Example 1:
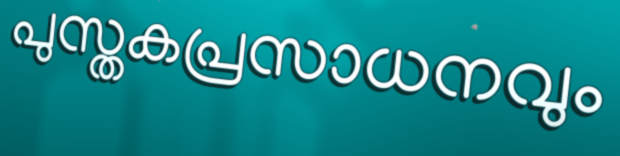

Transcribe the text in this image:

പുസ്തകപ്രസാധനവും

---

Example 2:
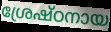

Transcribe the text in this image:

ശ്രേഷ്ഠനായ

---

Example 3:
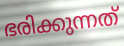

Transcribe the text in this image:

ഭരിക്കുന്നത്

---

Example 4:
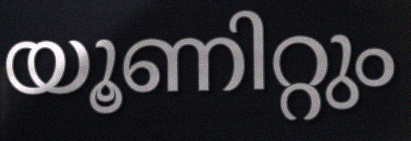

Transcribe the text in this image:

യൂണിറ്റും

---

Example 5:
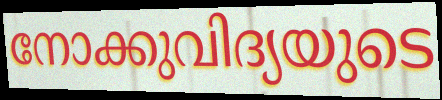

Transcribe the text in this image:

നോക്കുവിദ്യയുടെ